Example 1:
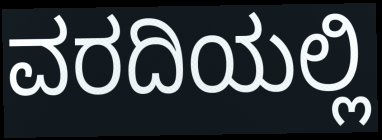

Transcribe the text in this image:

ವರದಿಯಲ್ಲಿ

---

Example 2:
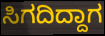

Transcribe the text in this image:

ಸಿಗದಿದ್ದಾಗ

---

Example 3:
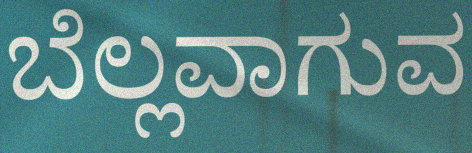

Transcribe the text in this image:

ಬೆಲ್ಲವಾಗುವ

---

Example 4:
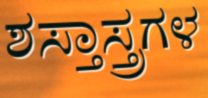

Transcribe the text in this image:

ಶಸ್ತಾಸ್ತ್ರಗಳ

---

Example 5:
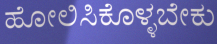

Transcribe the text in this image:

ಹೋಲಿಸಿಕೊಳ್ಳಬೇಕು